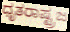
ಧೃತರಾಷ್ಟ್ರಜ